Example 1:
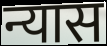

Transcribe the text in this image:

न्‍यास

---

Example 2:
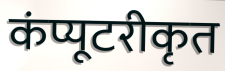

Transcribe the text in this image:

कंप्यूटरीकृत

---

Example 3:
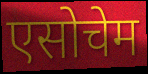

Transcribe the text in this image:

एसोचेम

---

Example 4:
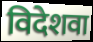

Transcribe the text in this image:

विदेशवा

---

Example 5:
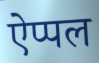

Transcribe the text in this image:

ऐप्पल